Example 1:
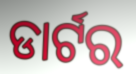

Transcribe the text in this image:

ଡାର୍ଟର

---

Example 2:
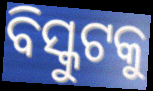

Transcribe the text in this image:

ବିସ୍କୁଟକୁ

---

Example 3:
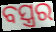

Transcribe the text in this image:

ବସ୍ତ୍ରର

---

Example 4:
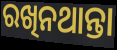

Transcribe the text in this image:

ରଖିନଥାନ୍ତା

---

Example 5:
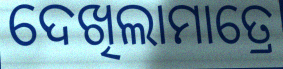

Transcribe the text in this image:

ଦେଖିଲାମାତ୍ରେ